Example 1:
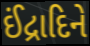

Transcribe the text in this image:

ઈંદ્રાદિને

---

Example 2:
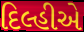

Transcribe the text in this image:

દિલ્હીએ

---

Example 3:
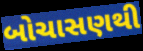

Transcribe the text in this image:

બોચાસણથી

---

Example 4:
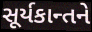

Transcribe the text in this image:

સૂર્યકાન્તને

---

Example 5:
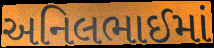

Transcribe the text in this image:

અનિલભાઈમાં